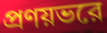
প্রণয়ভরে